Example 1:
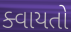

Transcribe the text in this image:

ક્વાયતો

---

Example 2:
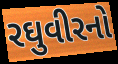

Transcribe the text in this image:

રઘુવીરનો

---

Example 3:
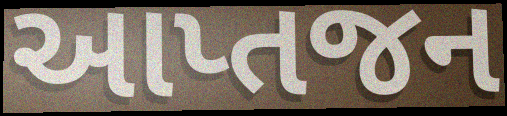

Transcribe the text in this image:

આપ્તજન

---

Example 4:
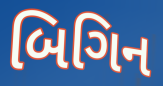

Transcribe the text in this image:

બિગિન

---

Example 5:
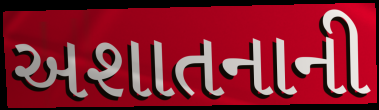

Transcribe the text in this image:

અશાતનાની